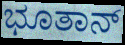
ಭೂತಾನ್